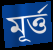
মূর্ত্ত